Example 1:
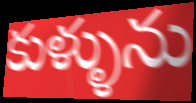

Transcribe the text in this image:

కుళ్ళును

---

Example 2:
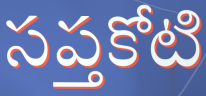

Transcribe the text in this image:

సప్తకోటి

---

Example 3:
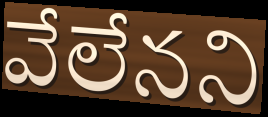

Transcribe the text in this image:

వేలేనని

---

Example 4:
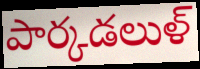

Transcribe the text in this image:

పార్కడలుళ్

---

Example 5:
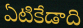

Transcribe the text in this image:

ఏటికేడాది